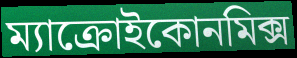
ম্যাক্রোইকোনমিক্স